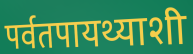
पर्वतपायथ्याशी